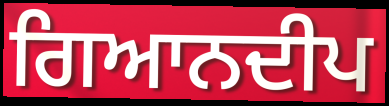
ਗਿਆਨਦੀਪ